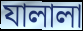
যালালা